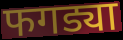
फगड्या